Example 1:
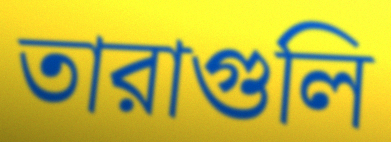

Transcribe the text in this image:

তারাগুলি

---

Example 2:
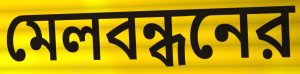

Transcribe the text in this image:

মেলবন্ধনের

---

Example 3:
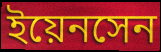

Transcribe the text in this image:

ইয়েনসেন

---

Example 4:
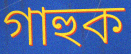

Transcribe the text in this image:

গাহুক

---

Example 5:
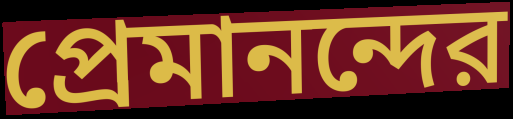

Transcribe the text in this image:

প্রেমানন্দের